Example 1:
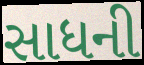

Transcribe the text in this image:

સાધની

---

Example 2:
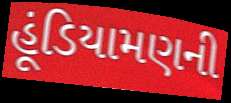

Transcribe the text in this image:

હૂંડિયામણની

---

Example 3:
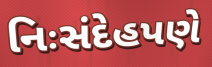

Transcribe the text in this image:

નિઃસંદેહપણે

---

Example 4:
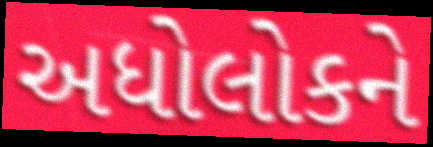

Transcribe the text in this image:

અધોલોકને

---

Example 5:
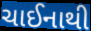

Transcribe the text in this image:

ચાઈનાથી